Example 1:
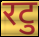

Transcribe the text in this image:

रटु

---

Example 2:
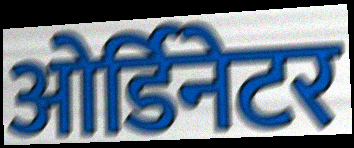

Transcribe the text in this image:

ओर्डिनेटर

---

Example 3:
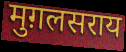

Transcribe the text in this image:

मुग़लसराय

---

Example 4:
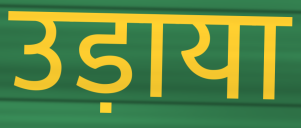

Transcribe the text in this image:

उड़ाया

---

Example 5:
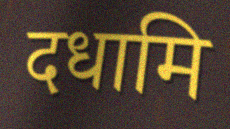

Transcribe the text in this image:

दधामि